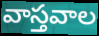
వాస్తవాల